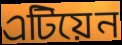
এটিয়েন